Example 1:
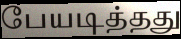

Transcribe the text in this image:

பேயடித்தது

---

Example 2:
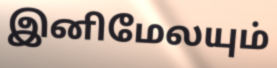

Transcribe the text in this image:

இனிமேலயும்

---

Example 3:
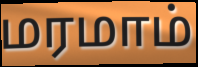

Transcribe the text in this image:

மரமாம்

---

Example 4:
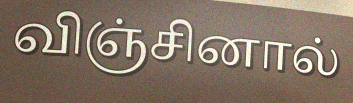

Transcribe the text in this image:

விஞ்சினால்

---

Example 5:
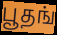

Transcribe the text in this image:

பூதங்